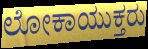
ಲೋಕಾಯುಕ್ತರು